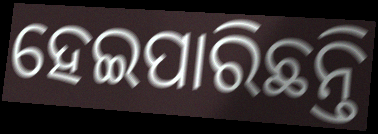
ହେଇପାରିଛନ୍ତି